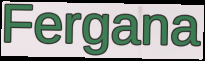
Fergana